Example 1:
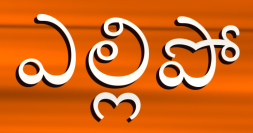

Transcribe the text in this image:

ఎల్లిపో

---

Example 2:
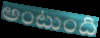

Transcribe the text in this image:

అంటుంది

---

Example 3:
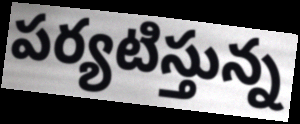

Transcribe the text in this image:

పర్యటిస్తున్న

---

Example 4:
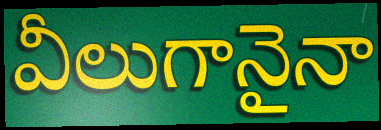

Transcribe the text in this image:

వీలుగానైనా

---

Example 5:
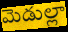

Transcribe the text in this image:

మెడుల్లా